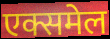
एक्समेल